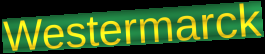
Westermarck